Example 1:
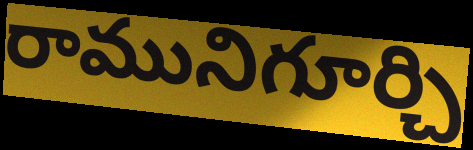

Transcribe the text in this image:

రామునిగూర్చి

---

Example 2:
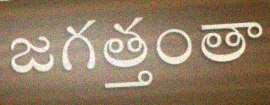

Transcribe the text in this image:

జగత్తంతా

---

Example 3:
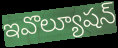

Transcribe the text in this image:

ఇవొల్యూషన్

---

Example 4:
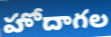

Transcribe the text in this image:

హోదాగల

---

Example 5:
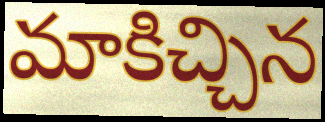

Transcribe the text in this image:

మాకిచ్చిన